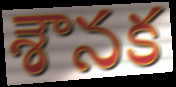
శౌనక